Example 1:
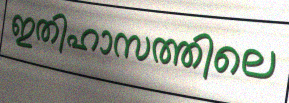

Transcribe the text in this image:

ഇതിഹാസത്തിലെ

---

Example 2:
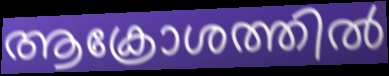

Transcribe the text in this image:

ആക്രോശത്തിൽ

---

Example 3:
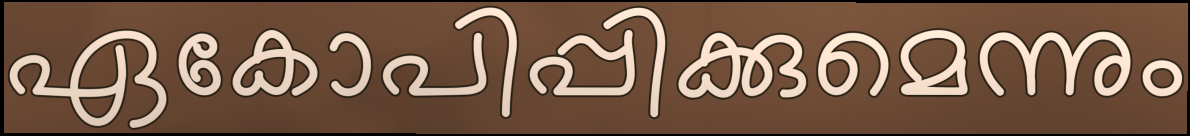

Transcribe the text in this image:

ഏകോപിപ്പിക്കുമെന്നും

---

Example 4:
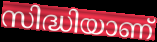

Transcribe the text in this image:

സിദ്ധിയാണ്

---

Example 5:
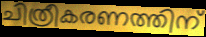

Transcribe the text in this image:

ചിത്രീകരണത്തിന്